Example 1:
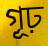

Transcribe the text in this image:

গূঢ়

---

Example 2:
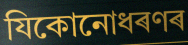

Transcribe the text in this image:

যিকোনোধৰণৰ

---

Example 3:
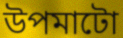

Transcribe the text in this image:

উপমাটো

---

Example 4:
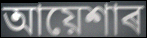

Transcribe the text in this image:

আয়েশাৰ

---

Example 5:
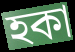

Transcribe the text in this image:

হকা